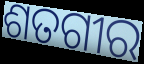
ଶତଗୀର